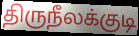
திருநீலக்குடி